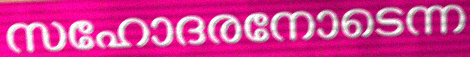
സഹോദരനോടെന്ന